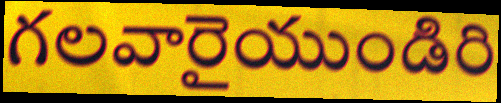
గలవారైయుండిరి